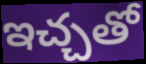
ఇచ్చతో